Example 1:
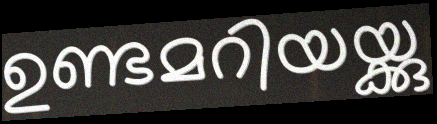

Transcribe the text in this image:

ഉണ്ടമറിയയ്ക്കു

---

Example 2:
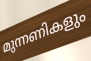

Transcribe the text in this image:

മുന്നണികളും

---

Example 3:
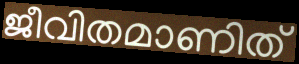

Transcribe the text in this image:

ജീവിതമാണിത്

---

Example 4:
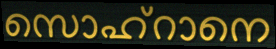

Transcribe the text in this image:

സൊഹ്റാനെ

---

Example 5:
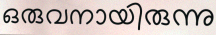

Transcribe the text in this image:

ഒരുവനായിരുന്നു